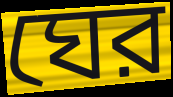
ঘের